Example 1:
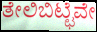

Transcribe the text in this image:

ತೇಲಿಬಿಟ್ಟೆವೇ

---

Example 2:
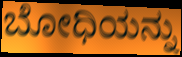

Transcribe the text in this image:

ಬೋಧಿಯನ್ನು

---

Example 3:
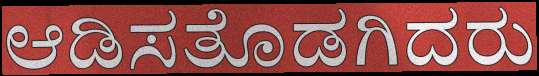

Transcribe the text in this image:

ಆಡಿಸತೊಡಗಿದರು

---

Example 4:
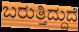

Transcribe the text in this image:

ಬರುತ್ತಿದ್ದುದೆ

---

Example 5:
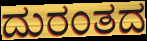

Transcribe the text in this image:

ದುರಂತದ